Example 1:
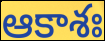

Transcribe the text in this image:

ఆకాశః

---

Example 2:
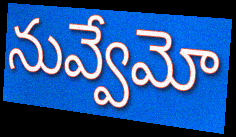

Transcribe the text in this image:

నువ్వేమో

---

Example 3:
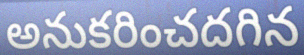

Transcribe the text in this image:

అనుకరించదగిన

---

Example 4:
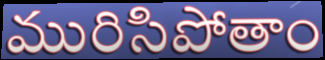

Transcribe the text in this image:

మురిసిపోతాం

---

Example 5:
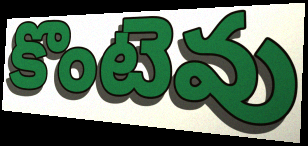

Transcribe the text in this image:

కొంటెవు